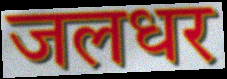
जलधर